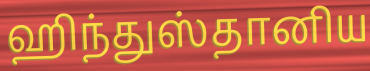
ஹிந்துஸ்தானிய